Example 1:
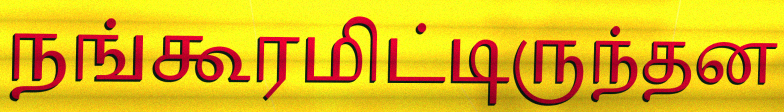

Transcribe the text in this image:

நங்கூரமிட்டிருந்தன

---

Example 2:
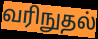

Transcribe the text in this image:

வரிநுதல்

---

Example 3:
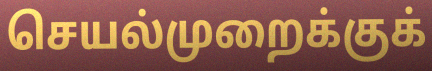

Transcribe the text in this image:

செயல்முறைக்குக்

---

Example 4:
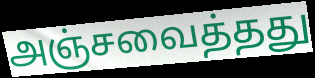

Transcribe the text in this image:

அஞ்சவைத்தது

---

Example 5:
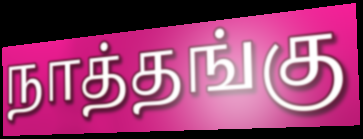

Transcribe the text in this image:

நாத்தங்கு